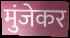
मुंजेकर